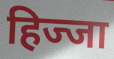
हिज्जा